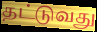
தட்டுவது